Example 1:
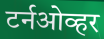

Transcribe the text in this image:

टर्नओव्हर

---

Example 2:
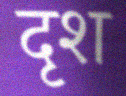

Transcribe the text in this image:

दृश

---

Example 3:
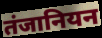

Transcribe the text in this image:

तंजानियन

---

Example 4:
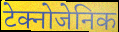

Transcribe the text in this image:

टेक्नोजेनिक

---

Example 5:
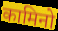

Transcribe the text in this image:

कामिनो